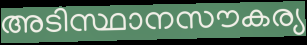
അടിസ്ഥാനസൗകര്യ